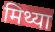
मिथ्‍या